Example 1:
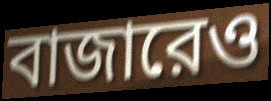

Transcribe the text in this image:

বাজারেও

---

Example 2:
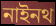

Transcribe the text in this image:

নাইনথ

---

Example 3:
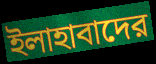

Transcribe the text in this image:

ইলাহাবাদের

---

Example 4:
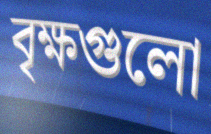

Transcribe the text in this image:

বৃক্ষগুলো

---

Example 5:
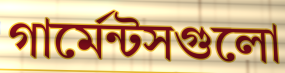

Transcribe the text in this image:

গার্মেন্টসগুলো